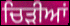
ਚਿੜੀਆਂ